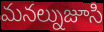
మనల్నుజూసి